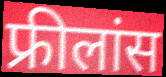
फ्रीलांस